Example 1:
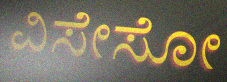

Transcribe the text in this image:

ವಿಸೇಸೋ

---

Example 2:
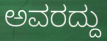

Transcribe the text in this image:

ಅವರದ್ದು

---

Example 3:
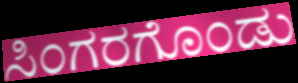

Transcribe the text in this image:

ಸಿಂಗರಗೊಂಡು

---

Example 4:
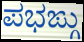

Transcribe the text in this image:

ಪಭಙ್ಗು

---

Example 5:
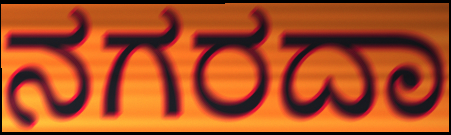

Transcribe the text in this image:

ನಗರದಾ